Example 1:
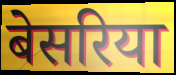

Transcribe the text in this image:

बेसरिया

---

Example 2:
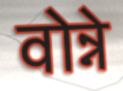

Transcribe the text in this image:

वोन्ने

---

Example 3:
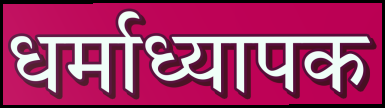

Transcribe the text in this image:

धर्माध्यापक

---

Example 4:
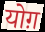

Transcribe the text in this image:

योग़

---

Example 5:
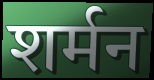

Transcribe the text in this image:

शर्मन